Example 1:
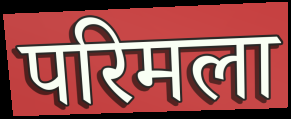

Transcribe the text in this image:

परिमला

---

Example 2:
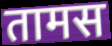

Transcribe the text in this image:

तामस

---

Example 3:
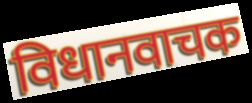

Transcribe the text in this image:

विधानवाचक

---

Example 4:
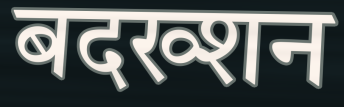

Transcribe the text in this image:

बदख्शन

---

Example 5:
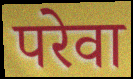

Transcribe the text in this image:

परेवा